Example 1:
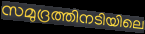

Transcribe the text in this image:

സമുദ്രത്തിനടിയിലെ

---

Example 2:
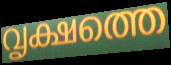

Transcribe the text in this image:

വൃക്ഷത്തെ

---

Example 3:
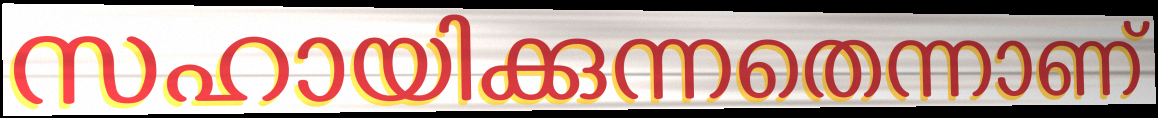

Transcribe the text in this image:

സഹായിക്കുന്നതെന്നാണ്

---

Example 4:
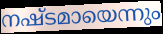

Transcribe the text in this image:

നഷ്ടമായെന്നും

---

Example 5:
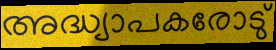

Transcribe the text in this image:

അദ്ധ്യാപകരോടു്